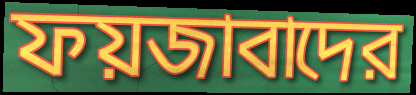
ফয়জাবাদের